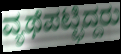
ವ್ಯಥೆಪಟ್ಟಿದ್ದರು